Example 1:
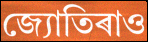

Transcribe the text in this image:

জ্যোতিৰাও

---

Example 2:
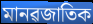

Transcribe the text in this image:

মানৱজাতিক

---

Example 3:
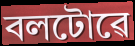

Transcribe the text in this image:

বলটোৱে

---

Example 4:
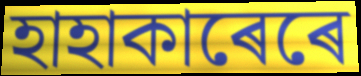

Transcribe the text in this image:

হাহাকাৰেৰে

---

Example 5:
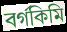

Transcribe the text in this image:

বৰ্গকিমি